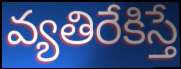
వ్యతిరేకిస్తే